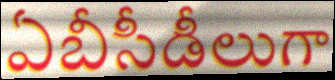
ఏబీసీడీలుగా